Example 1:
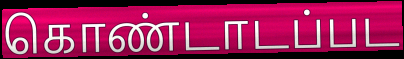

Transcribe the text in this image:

கொண்டாடப்பட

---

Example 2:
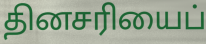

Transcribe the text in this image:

தினசரியைப்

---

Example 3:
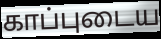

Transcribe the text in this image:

காப்புடைய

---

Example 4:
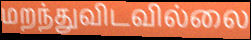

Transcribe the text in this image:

மறந்துவிடவில்லை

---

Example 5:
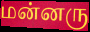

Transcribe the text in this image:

மன்னரு